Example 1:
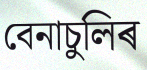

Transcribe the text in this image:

বেনাচুলিৰ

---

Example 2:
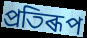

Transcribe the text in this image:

প্ৰতিৰূপ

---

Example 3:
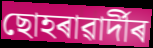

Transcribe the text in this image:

ছোহৰাৱাৰ্দীৰ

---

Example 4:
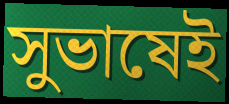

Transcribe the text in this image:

সুভাষেই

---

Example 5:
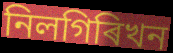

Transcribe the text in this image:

নিলগিৰিখন